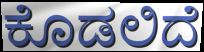
ಕೊಡಲಿದೆ